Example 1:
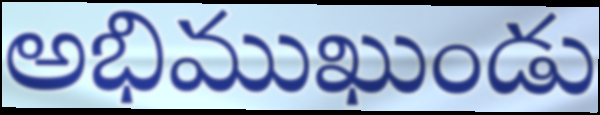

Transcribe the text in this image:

అభిముఖుండు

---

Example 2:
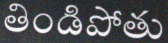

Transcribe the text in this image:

తిండిపోతు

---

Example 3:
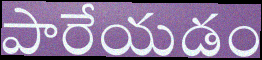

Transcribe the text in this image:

పారేయడం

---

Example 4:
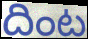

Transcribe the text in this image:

దింట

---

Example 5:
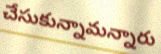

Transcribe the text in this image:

చేసుకున్నామన్నారు